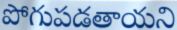
పోగుపడతాయని